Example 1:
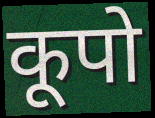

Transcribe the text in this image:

कूपो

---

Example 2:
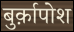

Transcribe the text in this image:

बुर्क़ापोश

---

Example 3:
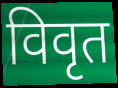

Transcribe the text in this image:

विवृत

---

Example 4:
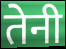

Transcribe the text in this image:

तेनी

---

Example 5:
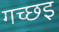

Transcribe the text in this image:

गच्छइ